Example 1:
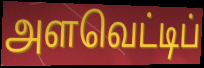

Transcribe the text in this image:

அளவெட்டிப்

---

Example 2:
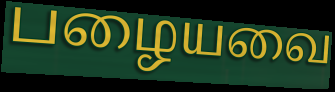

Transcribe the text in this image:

பழையவை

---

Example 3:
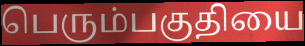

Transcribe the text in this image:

பெரும்பகுதியை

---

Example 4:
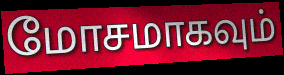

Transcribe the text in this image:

மோசமாகவும்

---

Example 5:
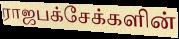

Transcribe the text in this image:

ராஜபக்சேக்களின்